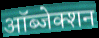
ऑब्जेक्शन